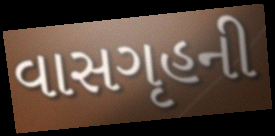
વાસગૃહની